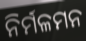
ନିର୍ମଳମନ